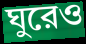
ঘুরেও